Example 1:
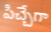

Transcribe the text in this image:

పిచ్చేగా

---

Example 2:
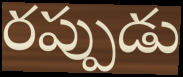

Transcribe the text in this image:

రప్పుడు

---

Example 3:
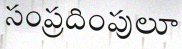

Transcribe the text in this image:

సంప్రదింపులూ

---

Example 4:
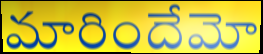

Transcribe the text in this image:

మారిందేమో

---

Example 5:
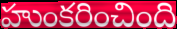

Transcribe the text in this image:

హుంకరించింది